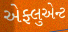
એફ્લુએન્ટ